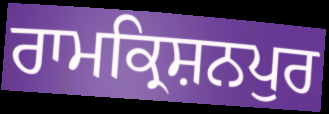
ਰਾਮਕ੍ਰਿਸ਼ਨਪੁਰ